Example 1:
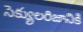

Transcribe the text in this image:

సెక్యులరిజానికి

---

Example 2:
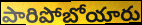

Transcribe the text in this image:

పారిపోబోయారు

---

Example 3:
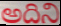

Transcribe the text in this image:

అదిని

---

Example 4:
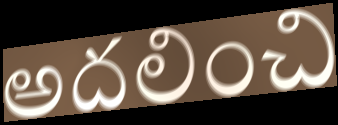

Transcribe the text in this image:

అదలించి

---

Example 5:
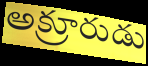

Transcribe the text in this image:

అక్రూరుడు